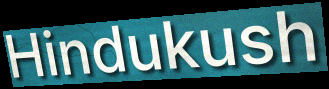
Hindukush